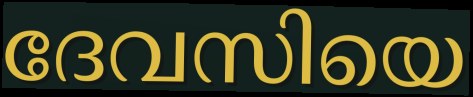
ദേവസിയെ